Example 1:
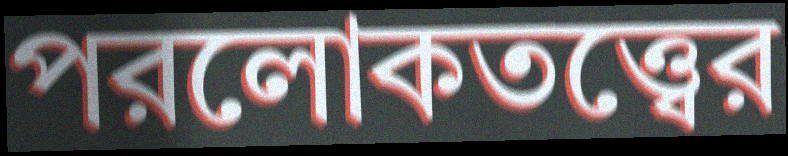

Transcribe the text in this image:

পরলোকতত্ত্বের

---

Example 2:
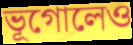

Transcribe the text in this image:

ভূগোলেও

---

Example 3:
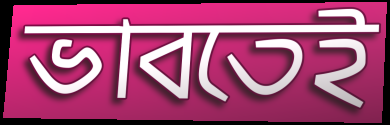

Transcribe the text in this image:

ভাবতেই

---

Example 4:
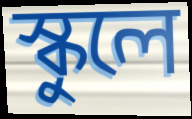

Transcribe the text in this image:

স্কুলে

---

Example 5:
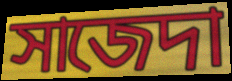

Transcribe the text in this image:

সাজেদা